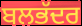
ਬਲਭੱਦਰ